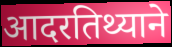
आदरतिथ्याने